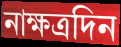
নাক্ষত্রদিন